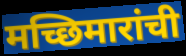
मच्छिमारांची